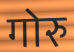
गोरु